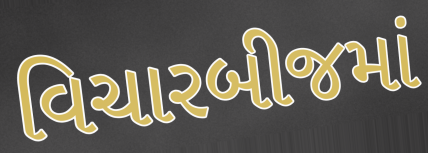
વિચારબીજમાં